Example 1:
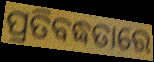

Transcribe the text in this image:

ପ୍ରତିବଦ୍ଧତାରେ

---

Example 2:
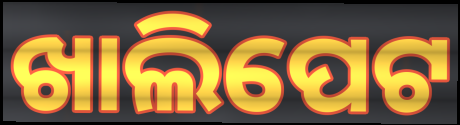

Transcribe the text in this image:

ଖାଲିପେଟ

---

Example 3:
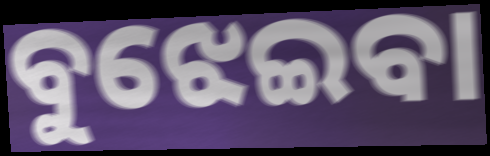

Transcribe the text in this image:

ବୁଝେଇବା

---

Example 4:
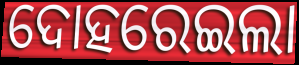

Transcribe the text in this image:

ଦୋହରେଇଲା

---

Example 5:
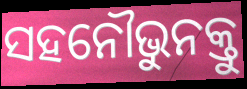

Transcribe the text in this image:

ସହନୌଭୁନକ୍ତୁ